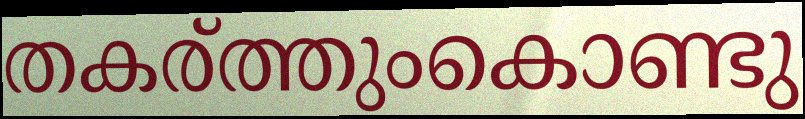
തകര്ത്തുംകൊണ്ടു